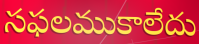
సఫలముకాలేదు